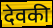
देवकी